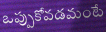
ఒప్పుకోవడమంటే